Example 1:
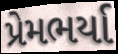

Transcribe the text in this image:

પ્રેમભર્યા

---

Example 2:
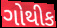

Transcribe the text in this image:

ગોથીક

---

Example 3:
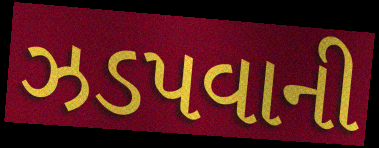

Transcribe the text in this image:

ઝડપવાની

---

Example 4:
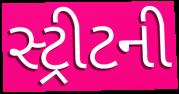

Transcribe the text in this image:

સ્ટ્રીટની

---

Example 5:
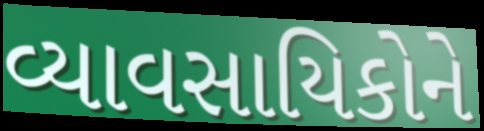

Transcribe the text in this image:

વ્યાવસાયિકોને